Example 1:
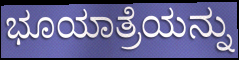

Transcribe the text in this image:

ಭೂಯಾತ್ರೆಯನ್ನು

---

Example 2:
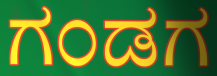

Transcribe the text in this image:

ಗಂಡಗ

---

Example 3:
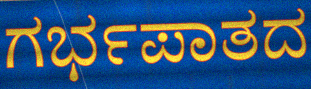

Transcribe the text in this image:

ಗರ್ಭಪಾತದ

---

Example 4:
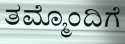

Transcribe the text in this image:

ತಮ್ಮೊಂದಿಗೆ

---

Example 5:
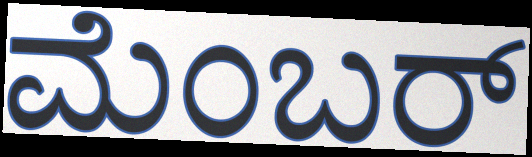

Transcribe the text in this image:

ಮೆಂಬರ್